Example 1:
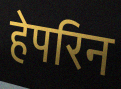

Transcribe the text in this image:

हेपरिन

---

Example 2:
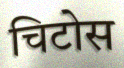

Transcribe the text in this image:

चिटोस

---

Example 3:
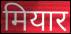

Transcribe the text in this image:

मियार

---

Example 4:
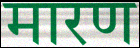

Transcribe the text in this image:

मारण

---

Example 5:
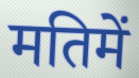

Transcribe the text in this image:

मतिमें